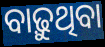
ବାଢ଼ୁଥିବା